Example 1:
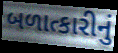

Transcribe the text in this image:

બળાત્કારીનું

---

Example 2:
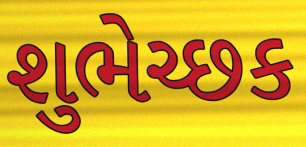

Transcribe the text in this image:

શુભેચ્છક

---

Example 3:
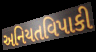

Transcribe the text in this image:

અનિયતવિપાકી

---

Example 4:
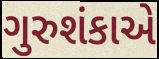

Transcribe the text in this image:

ગુરુશંકાએ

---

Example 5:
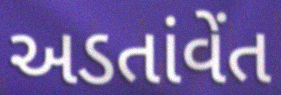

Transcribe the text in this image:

અડતાંવેંત